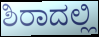
ಶಿರಾದಲ್ಲಿ